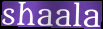
shaala